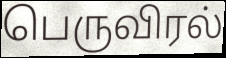
பெருவிரல்